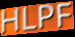
HLPF